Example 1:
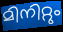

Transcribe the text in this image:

മിനിറ്റും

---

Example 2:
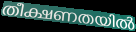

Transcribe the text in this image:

തീക്ഷണതയിൽ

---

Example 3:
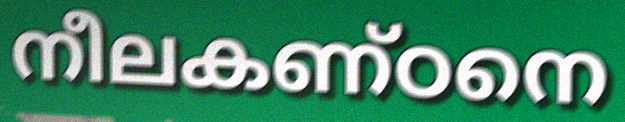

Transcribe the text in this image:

നീലകണ്ഠനെ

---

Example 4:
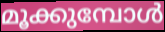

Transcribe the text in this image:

മൂക്കുമ്പോൾ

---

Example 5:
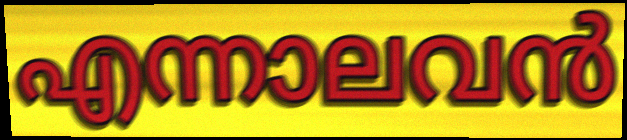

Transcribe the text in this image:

എന്നാലവൻ